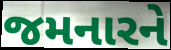
જમનારને